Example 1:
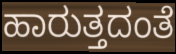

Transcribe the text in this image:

ಹಾರುತ್ತದಂತೆ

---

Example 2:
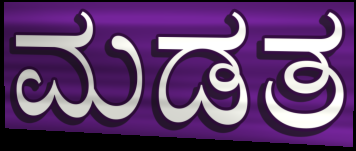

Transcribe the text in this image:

ಮಡತ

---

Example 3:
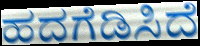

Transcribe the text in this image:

ಹದಗೆಡಿಸಿದೆ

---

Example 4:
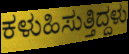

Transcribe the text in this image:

ಕಳುಹಿಸುತ್ತಿದ್ದಳು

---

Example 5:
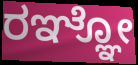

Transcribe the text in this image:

ರಞ್ಞೋ